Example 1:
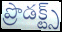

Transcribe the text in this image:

ప్రొడక్ట్స్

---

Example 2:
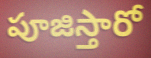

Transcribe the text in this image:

పూజిస్తారో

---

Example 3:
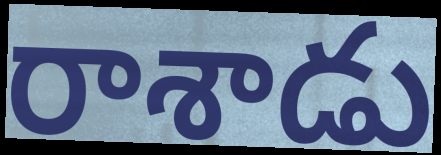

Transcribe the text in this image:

రాశాడు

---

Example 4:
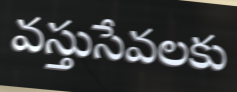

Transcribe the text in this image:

వస్తుసేవలకు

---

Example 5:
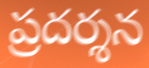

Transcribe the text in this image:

ప్రదర్శన